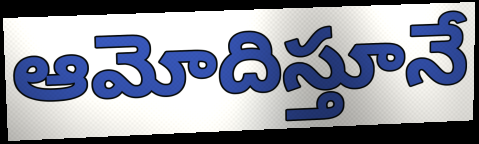
ఆమోదిస్తూనే